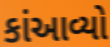
કાંઆવ્યો